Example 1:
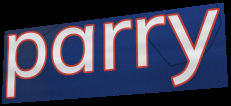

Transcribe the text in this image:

parry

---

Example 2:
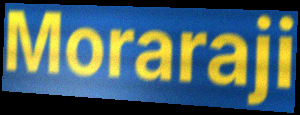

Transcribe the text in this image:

Moraraji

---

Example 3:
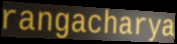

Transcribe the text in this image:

rangacharya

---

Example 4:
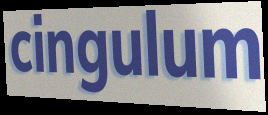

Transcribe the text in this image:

cingulum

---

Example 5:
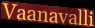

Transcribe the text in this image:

Vaanavalli